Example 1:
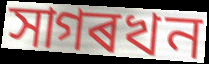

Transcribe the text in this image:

সাগৰখন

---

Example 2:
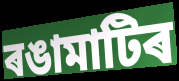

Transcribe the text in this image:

ৰঙামাটিৰ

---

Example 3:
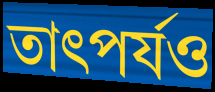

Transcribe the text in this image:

তাৎপৰ্যও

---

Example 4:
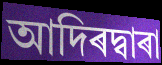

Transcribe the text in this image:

আদিৰদ্বাৰা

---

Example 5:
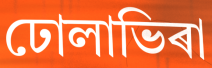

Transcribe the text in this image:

ঢোলাভিৰা